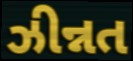
ઝીન્નત